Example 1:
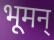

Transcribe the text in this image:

भूमन्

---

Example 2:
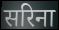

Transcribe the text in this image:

सरिना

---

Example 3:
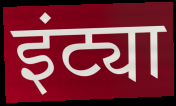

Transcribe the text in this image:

इंट्या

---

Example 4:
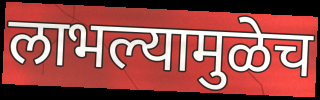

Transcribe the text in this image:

लाभल्यामुळेच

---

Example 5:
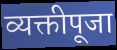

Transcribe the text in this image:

व्यक्तीपूजा